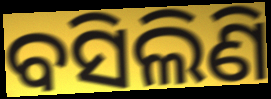
ବସିଲିଣି